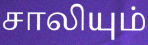
சாலியும்